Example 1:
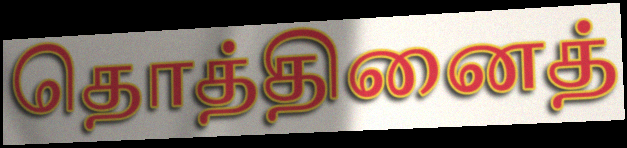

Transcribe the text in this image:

தொத்தினைத்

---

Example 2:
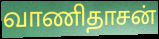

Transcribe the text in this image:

வாணிதாசன்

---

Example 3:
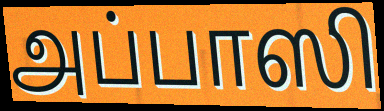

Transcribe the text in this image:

அப்பாஸி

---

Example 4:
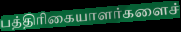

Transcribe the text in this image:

பத்திரிகையாளர்களைச்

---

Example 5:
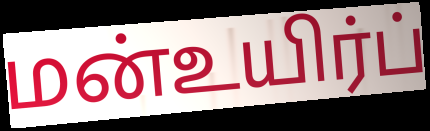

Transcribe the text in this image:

மன்உயிர்ப்